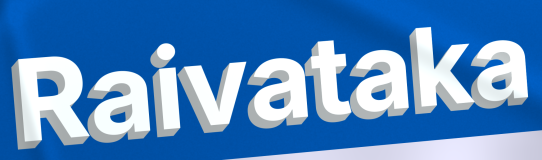
Raivataka